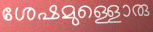
ശേഷമുള്ളൊരു